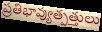
ప్రతిభావ్యుత్పత్తులు